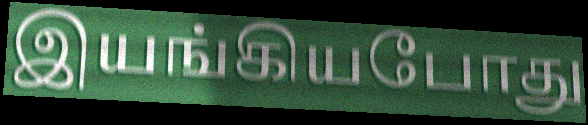
இயங்கியபோது